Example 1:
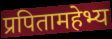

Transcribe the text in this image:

प्रपितामहेभ्य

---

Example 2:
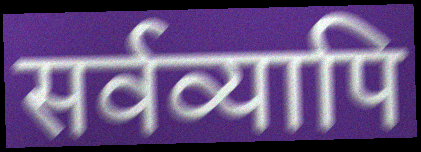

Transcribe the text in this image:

सर्वव्यापि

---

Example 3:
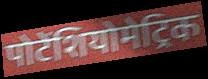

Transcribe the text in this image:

पोटेंशियोमेट्रिक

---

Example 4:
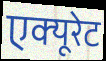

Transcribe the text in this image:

एक्यूरेट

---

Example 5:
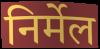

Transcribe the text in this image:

निर्मेल